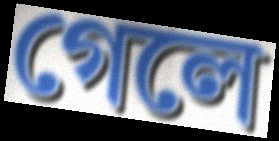
গেলে